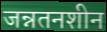
जन्नतनशीन